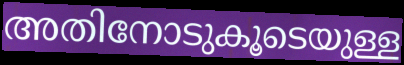
അതിനോടുകൂടെയുള്ള